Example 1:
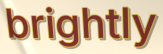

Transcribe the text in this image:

brightly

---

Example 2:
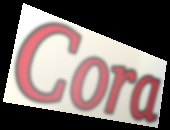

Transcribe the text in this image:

Cora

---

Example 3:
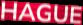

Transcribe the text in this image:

HAGUE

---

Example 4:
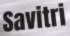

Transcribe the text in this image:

Savitri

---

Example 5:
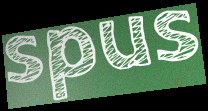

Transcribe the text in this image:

spus